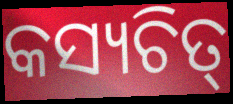
କସ୍ୟଚିତ୍